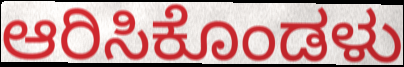
ಆರಿಸಿಕೊಂಡಳು